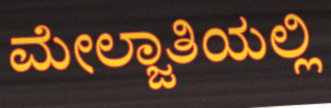
ಮೇಲ್ಜಾತಿಯಲ್ಲಿ